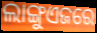
ଲାଙ୍ଗୁଏଜରେ